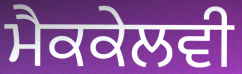
ਮੈਕਕੇਲਵੀ